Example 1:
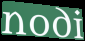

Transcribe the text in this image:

nodi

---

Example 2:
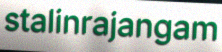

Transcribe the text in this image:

stalinrajangam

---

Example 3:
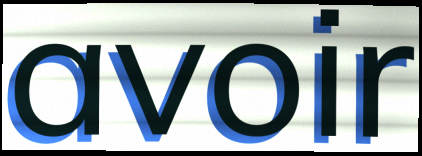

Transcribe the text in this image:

avoir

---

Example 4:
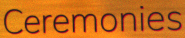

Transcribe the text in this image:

Ceremonies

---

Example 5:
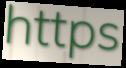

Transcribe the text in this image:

https